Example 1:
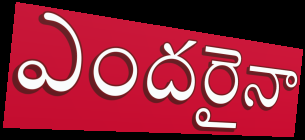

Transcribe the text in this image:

ఎందరైనా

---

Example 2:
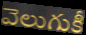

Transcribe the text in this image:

వెలుగుకీ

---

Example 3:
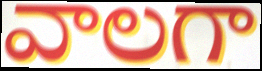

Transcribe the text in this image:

వాలగా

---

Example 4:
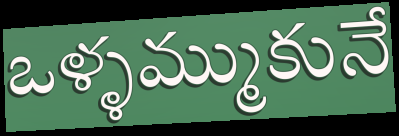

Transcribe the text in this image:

ఒళ్ళమ్ముకునే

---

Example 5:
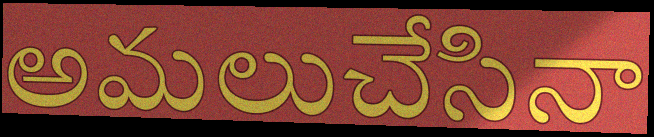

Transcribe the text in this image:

అమలుచేసినా